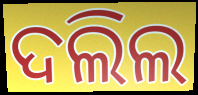
ଦଲିଲ